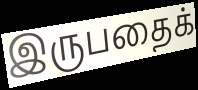
இருபதைக்